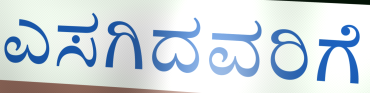
ಎಸಗಿದವರಿಗೆ